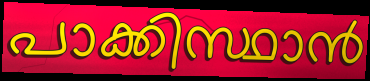
പാക്കിസ്ഥാൻ